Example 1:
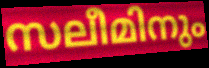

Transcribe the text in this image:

സലീമിനും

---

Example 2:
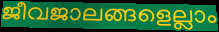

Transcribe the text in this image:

ജീവജാലങ്ങളെല്ലാം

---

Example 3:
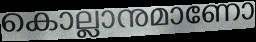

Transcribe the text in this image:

കൊല്ലാനുമാണോ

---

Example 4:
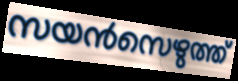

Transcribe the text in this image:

സയൻസെഴുത്ത്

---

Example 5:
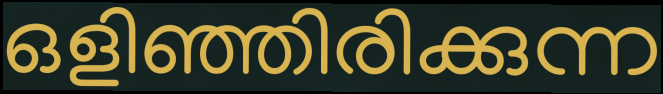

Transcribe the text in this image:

ഒളിഞ്ഞിരിക്കുന്ന